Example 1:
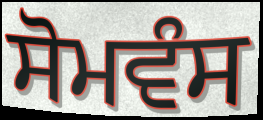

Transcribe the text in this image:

ਸੋਮਵੰਸ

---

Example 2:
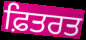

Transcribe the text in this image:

ਫ਼ਿਤਰਤ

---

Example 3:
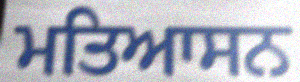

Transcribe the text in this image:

ਮਤਿਆਸਨ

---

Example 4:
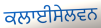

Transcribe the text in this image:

ਕਲਾਈਸੇਲਵਨ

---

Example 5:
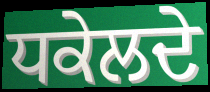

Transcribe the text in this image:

ਧਕੇਲਦੇ